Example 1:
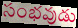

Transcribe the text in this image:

సంభవుడు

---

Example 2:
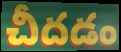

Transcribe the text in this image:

చీదడం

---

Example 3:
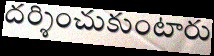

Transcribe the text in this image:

దర్శించుకుంటారు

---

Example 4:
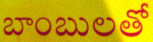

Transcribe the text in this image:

బాంబులతో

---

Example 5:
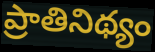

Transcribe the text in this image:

ప్రాతినిథ్యం